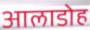
आलाडोह